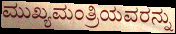
ಮುಖ್ಯಮಂತ್ರಿಯವರನ್ನು